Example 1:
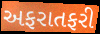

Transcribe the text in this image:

અફરાતફરી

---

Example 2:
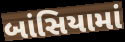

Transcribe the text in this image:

બાંસિયામાં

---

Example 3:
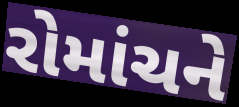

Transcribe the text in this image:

રોમાંચને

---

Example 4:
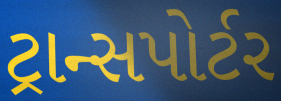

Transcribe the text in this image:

ટ્રાન્સપોર્ટર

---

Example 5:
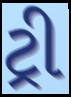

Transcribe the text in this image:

ટ્રી